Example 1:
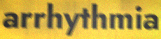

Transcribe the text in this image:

arrhythmia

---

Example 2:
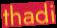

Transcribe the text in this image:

thadi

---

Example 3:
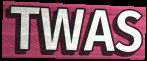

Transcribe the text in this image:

TWAS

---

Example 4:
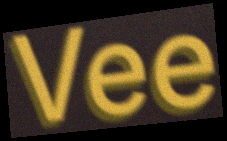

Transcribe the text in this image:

Vee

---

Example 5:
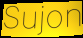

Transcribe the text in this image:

Sujon